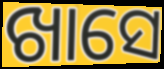
ଖାସେ